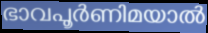
ഭാവപൂർണിമയാൽ